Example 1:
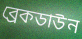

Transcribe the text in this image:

ব্রেকডাউন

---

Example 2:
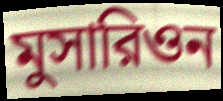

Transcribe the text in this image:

মুসারিওন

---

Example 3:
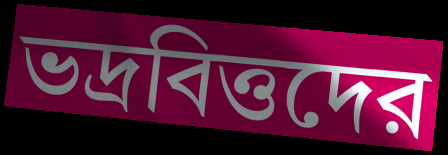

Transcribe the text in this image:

ভদ্রবিত্তদের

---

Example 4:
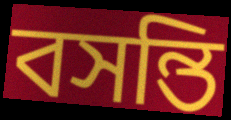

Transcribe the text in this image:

বসন্তি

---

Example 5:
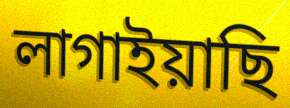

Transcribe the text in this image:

লাগাইয়াছি